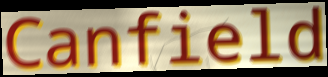
Canfield